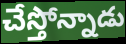
చేస్తోన్నాడు